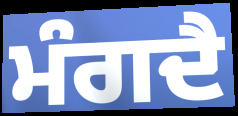
ਮੰਗਦੈ